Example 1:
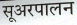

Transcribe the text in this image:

सूअरपालन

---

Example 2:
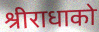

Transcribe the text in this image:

श्रीराधाको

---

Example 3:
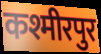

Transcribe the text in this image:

कश्मीरपुर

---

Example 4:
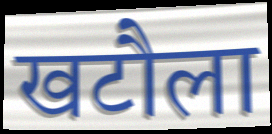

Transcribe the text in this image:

खटौला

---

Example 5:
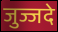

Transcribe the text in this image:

जुज्जदे